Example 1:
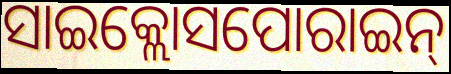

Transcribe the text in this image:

ସାଇକ୍ଲୋସପୋରାଇନ୍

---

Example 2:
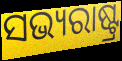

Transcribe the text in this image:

ସଭ୍ୟରାଷ୍ଟ୍ର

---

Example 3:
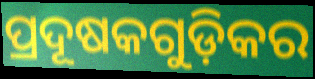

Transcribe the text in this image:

ପ୍ରଦୂଷକଗୁଡ଼ିକର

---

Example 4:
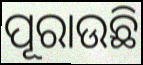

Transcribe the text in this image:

ପୂରାଉଛି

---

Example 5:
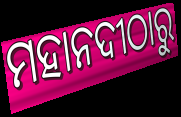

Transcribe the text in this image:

ମହାନଦୀଠାରୁ